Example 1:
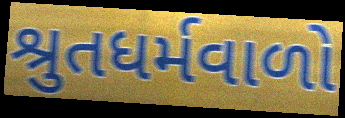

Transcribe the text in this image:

શ્રુતધર્મવાળો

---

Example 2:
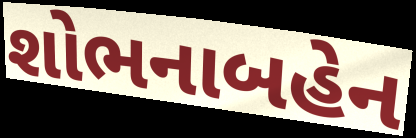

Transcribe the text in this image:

શોભનાબહેન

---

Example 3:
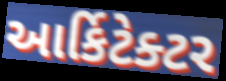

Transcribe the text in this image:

આર્કિટેક્ટર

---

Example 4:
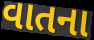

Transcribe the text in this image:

વાતના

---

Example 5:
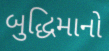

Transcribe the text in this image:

બુદ્ધિમાનો